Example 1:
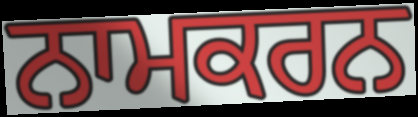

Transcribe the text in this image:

ਨਾਮਕਰਨ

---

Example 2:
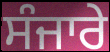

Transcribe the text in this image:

ਸੰਜਾਰੇ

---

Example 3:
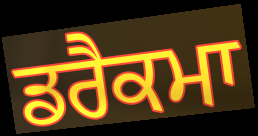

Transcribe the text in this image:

ਡਰੈਕਮਾ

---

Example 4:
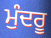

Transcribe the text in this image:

ਮੁੰਦਰੂ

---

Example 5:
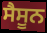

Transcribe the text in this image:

ਸੈਸੂਨ